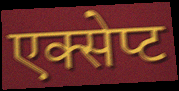
एक्सेप्ट